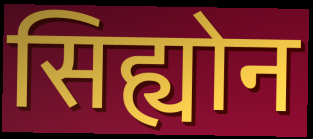
सिह्योन